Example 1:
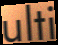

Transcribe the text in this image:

ulti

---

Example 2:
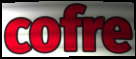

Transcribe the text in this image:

cofre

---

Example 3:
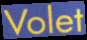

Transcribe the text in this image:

Volet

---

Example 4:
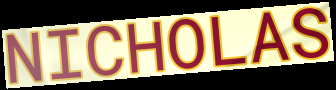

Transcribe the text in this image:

NICHOLAS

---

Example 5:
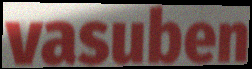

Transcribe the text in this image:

vasuben